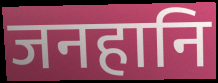
जनहानि